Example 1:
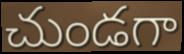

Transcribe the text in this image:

చుండగా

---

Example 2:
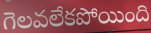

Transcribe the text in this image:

గెలవలేకపోయింది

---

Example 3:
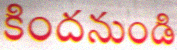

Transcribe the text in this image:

కిందనుండి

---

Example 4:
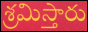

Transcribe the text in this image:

శ్రమిస్తారు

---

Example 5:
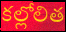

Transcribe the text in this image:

కల్లోలిత